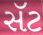
સૅટ